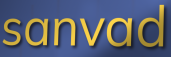
sanvad